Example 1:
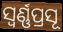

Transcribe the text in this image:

ସ୍ଵର୍ଣ୍ଣପ୍ରସୂ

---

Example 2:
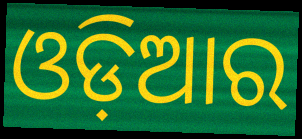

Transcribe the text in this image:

ଓଡ଼ିଆର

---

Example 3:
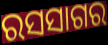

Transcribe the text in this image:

ରସସାଗର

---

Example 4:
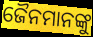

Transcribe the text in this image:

ଜୈନମାନଙ୍କୁ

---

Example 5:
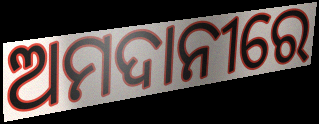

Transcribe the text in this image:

ଅମଦାନୀରେ